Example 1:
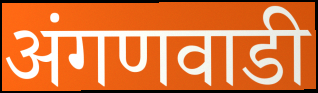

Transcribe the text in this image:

अंगणवाडी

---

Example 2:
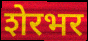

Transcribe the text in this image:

शेरभर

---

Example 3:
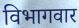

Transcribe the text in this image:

विभागवार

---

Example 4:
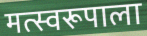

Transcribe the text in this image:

मत्स्वरूपाला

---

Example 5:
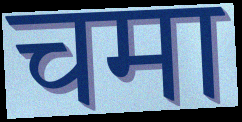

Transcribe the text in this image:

चमा